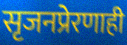
सृजनप्रेरणाही